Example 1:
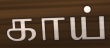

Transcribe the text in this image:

காய்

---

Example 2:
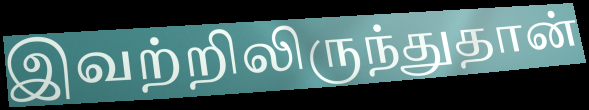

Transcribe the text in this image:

இவற்றிலிருந்துதான்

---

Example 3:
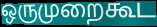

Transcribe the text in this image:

ஒருமுறைகூட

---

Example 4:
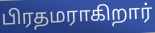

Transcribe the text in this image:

பிரதமராகிறார்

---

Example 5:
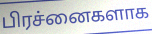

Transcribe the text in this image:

பிரச்னைகளாக